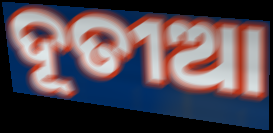
ଦୂତୀଆ